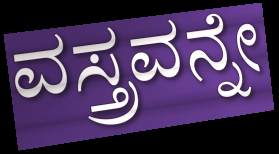
ವಸ್ತ್ರವನ್ನೇ